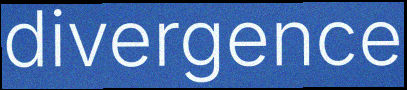
divergence